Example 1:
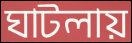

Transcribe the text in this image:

ঘাটলায়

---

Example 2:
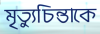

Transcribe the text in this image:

মৃত্যুচিন্তাকে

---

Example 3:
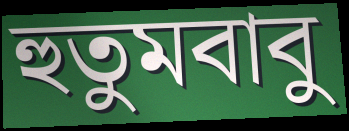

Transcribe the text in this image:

হুতুমবাবু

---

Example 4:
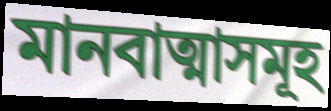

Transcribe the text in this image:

মানবাত্মাসমূহ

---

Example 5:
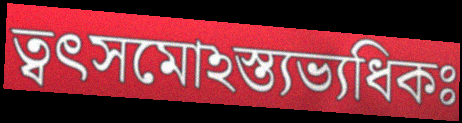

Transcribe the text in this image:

ত্বৎসমোঽস্ত্যভ্যধিকঃ